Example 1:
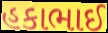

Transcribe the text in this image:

હકાભાઈ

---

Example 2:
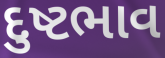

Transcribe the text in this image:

દુષ્ટભાવ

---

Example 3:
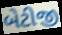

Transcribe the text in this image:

બેટીજી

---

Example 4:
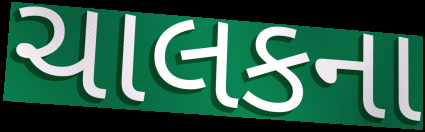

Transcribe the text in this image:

ચાલકના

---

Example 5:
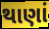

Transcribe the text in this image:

થાણાં